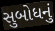
સુબોધનું